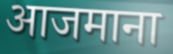
आजमाना